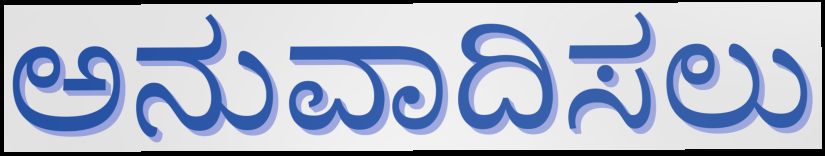
ಅನುವಾದಿಸಲು